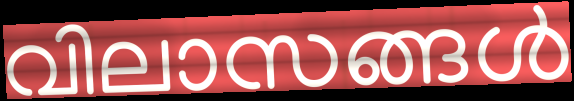
വിലാസങ്ങൾ